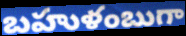
బహుళంబుగా